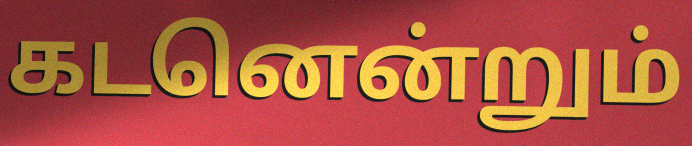
கடனென்றும்